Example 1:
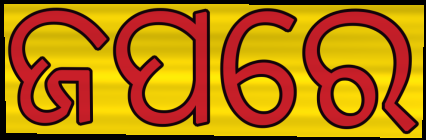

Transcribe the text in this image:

ଜପରେ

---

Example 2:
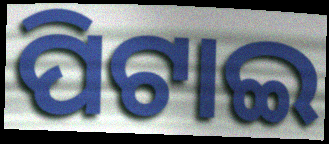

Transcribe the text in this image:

ପିଟାଇ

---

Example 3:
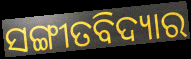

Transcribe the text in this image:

ସଙ୍ଗୀତବିଦ୍ୟାର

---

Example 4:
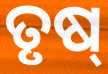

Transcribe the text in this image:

ତୃଷ୍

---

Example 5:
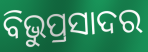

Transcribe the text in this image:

ବିଭୁପ୍ରସାଦର